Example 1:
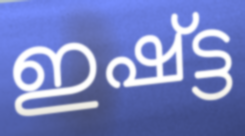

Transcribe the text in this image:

ഇഷ്ട്ട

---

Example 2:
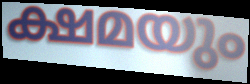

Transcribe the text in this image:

ക്ഷമയും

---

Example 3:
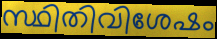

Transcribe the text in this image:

സ്ഥിതിവിശേഷം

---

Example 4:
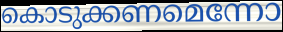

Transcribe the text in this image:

കൊടുക്കണമെന്നോ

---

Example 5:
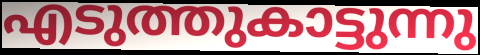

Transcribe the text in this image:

എടുത്തുകാട്ടുന്നു